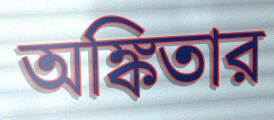
অঙ্কিতার